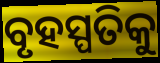
ବୃହସ୍ପତିକୁ